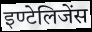
इण्टेलिजेंस